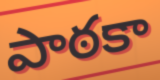
పాఠకా